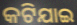
କଟିଯାଇ